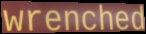
wrenched